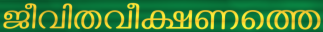
ജീവിതവീക്ഷണത്തെ